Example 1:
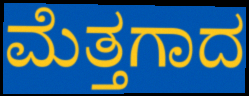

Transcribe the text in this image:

ಮೆತ್ತಗಾದ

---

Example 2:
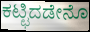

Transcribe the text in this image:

ಕಟ್ಟಿದಡೇನೊ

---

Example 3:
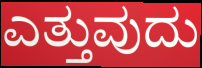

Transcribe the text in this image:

ಎತ್ತುವುದು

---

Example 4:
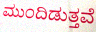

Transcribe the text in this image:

ಮುಂದಿಡುತ್ತವೆ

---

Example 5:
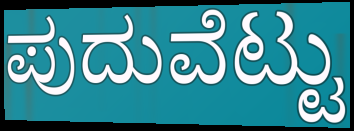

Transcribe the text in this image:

ಪುದುವೆಟ್ಟು